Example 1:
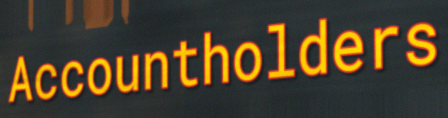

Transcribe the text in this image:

Accountholders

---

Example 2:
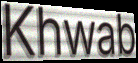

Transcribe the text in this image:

Khwab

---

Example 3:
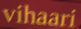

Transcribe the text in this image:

vihaari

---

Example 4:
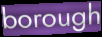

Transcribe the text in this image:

borough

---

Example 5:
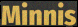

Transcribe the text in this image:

Minnis